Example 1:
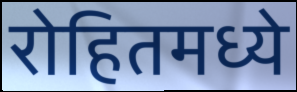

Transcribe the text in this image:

रोहितमध्ये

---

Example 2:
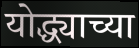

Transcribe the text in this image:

योद्ध्याच्या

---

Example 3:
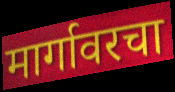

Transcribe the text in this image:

मार्गावरचा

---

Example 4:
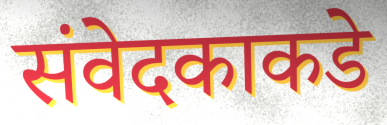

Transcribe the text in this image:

संवेदकाकडे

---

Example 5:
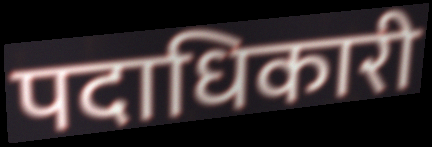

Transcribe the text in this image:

पदाधिकारी